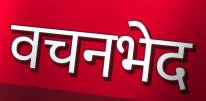
वचनभेद